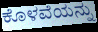
ಕೊಳವೆಯನ್ನು